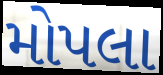
મોપલા